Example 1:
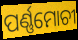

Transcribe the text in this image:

ପର୍ଣ୍ଣମୋଚୀ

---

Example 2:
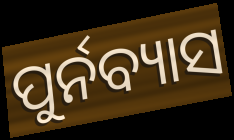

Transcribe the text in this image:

ପୁର୍ନବ୍ୟାସ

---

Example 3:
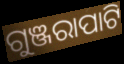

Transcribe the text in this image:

ଗୁଞ୍ଜରାପାଟି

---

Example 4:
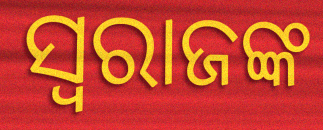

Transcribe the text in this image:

ସ୍ୱରାଜଙ୍କ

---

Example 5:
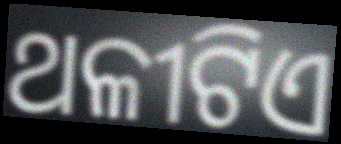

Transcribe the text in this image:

ଥଳୀଟିଏ